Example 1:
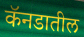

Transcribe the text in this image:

कॅनडातील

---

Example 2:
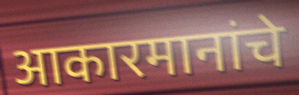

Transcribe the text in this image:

आकारमानांचे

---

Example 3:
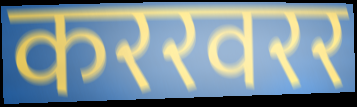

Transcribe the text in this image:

कररवरर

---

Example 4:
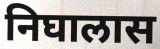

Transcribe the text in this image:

निघालास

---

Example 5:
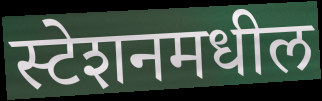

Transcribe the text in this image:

स्टेशनमधील